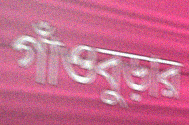
গাঁওবুড়ার